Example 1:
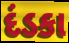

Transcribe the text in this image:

દંડકા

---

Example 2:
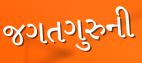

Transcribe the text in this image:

જગતગુરુની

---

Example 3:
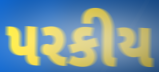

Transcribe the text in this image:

પરકીય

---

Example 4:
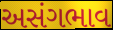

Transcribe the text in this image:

અસંગભાવ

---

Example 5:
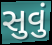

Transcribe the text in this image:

સુવું